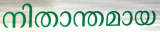
നിതാന്തമായ